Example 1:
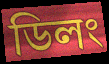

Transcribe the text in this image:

ডিলং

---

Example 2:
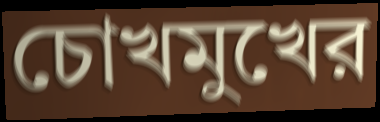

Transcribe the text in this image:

চোখমুখের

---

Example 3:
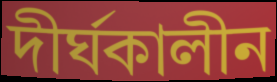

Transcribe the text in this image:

দীর্ঘকালীন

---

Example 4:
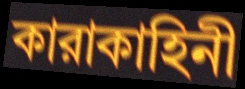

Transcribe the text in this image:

কারাকাহিনী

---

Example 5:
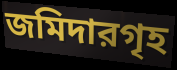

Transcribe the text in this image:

জমিদারগৃহ